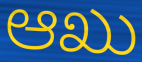
ಆಖು